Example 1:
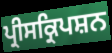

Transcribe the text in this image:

ਪ੍ਰੀਸਕ੍ਰਿਪਸ਼ਨ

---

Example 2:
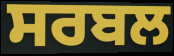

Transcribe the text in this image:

ਸਰਬਲ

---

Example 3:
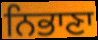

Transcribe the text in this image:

ਨਿਭਾਣਾ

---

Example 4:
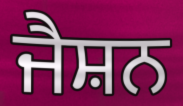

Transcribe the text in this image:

ਜੈਸ਼ਨ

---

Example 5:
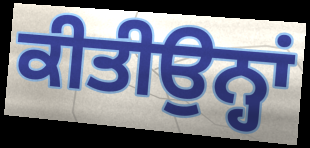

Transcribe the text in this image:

ਕੀਤੀਉਨ੍ਹਾਂ